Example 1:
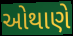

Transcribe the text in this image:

ઓથાણે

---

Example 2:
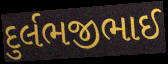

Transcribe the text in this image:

દુર્લભજીભાઈ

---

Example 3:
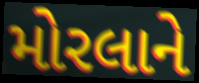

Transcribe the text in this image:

મોરલાને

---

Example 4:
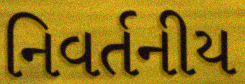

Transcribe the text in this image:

નિવર્તનીય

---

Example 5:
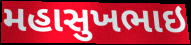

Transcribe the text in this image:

મહાસુખભાઇ